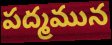
పద్మమున